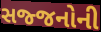
સજ્જનોની